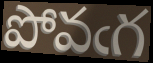
పోవఁగ